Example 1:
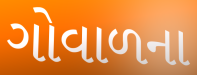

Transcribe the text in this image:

ગોવાળના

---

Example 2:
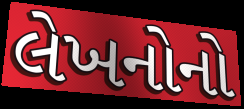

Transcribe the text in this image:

લેખનોનો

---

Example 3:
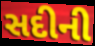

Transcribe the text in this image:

સદીની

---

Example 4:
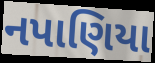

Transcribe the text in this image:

નપાણિયા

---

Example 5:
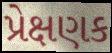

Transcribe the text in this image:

પ્રેક્ષણક